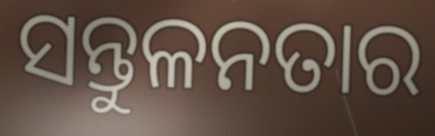
ସନ୍ତୁଳନତାର